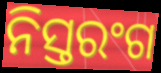
ନିସ୍ତରଂଗ